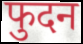
फुदन